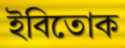
ইবিতোক